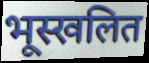
भूस्खलित